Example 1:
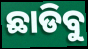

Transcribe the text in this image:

ଛାଡିବୁ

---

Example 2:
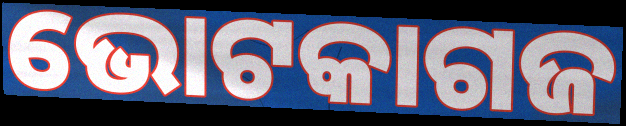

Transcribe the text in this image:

ଭୋଟକାଗଜ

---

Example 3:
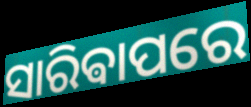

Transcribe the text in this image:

ସାରିଵାପରେ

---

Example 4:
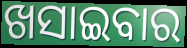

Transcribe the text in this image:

ଖସାଇବାର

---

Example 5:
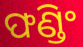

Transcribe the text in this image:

ଫଣ୍ଡିଂ